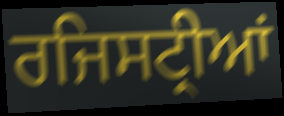
ਰਜਿਸਟ੍ਰੀਆਂ